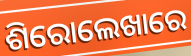
ଶିରୋଲେଖାରେ